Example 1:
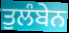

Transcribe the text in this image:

ਤੁਲੰਬੇਨ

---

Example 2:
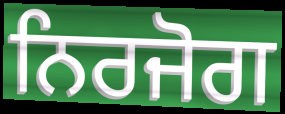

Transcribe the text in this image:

ਨਿਰਜੋਗ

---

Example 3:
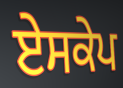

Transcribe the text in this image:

ਏਸਕੇਪ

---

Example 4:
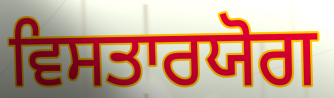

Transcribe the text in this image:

ਵਿਸਤਾਰਯੋਗ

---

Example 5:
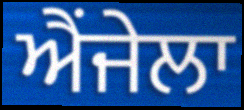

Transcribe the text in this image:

ਐਂਜੇਲਾ